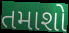
તમાશો